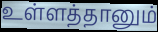
உள்ளத்தானும்